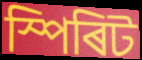
স্পিৰিট